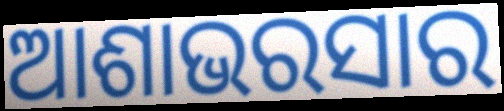
ଆଶାଭରସାର